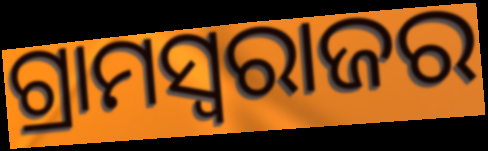
ଗ୍ରାମସ୍ୱରାଜର